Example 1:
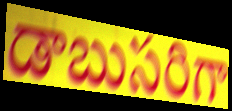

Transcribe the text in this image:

డాబుసరిగా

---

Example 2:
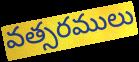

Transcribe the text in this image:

వత్సరములు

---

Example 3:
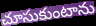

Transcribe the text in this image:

చూసుకుంటాను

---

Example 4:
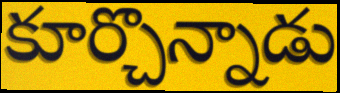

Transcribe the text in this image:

కూర్చొన్నాడు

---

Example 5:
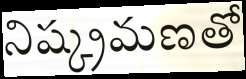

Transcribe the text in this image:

నిష్క్రమణతో